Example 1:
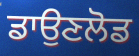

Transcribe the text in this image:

ਡਾਉਣਲੋਡ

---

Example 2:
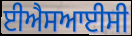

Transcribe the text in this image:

ਈਐਸਆਈਸੀ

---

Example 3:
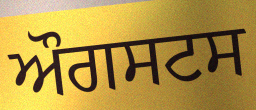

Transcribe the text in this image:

ਔਗਸਟਸ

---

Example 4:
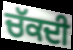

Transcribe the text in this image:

ਚੱਕਦੀ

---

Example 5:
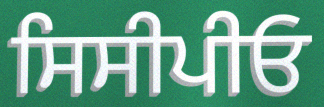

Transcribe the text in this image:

ਸਿਸੀਪੀਓ